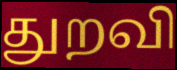
துறவி